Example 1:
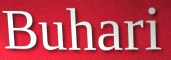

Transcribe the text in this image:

Buhari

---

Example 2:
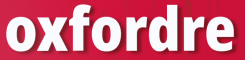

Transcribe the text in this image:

oxfordre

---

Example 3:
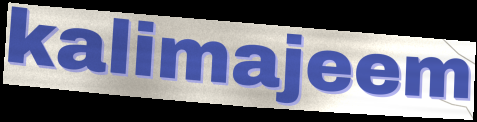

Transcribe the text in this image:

kalimajeem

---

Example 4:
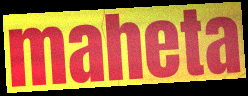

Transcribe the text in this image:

maheta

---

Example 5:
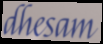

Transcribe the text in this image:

dhesam